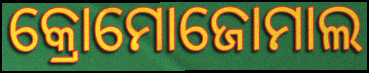
କ୍ରୋମୋଜୋମାଲ